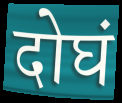
दोघं